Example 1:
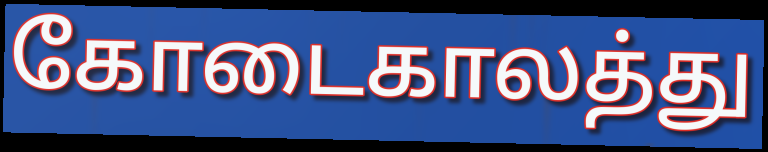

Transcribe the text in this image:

கோடைகாலத்து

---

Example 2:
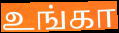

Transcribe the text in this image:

உங்கா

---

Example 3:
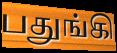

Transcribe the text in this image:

பதுங்கி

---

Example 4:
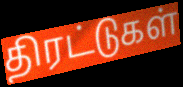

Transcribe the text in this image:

திரட்டுகள்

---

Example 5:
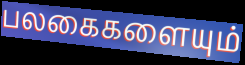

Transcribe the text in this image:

பலகைகளையும்